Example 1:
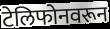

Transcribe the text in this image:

टेलिफोनवरून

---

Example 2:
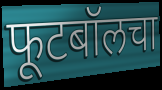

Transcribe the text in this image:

फूटबॉलचा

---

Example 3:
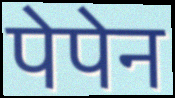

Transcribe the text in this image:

पेपेन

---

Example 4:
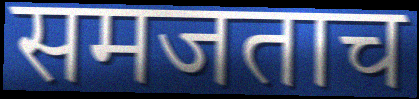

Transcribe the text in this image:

समजताच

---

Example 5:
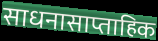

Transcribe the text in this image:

साधनासाप्ताहिक